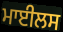
ਮਾਈਲਸ